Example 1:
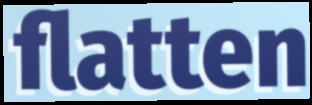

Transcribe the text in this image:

flatten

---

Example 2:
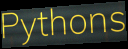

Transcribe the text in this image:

Pythons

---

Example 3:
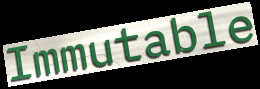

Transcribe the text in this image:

Immutable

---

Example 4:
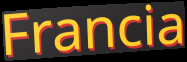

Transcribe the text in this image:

Francia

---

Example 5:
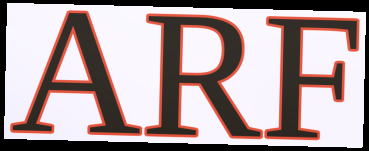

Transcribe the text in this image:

ARF